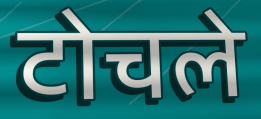
टोचले